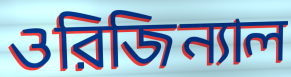
ওরিজিন্যাল